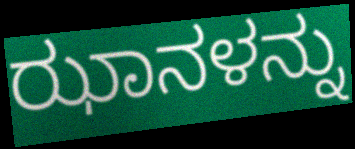
ಝಾನಳನ್ನು